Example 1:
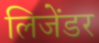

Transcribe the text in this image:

लिजेंडर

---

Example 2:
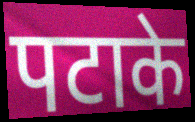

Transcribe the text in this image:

पटाके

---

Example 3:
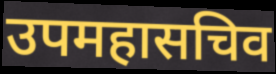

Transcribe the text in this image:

उपमहासचिव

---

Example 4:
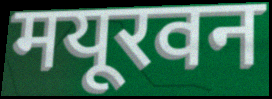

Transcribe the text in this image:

मयूरवन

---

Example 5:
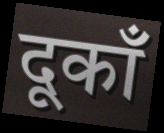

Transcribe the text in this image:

दूकाँ